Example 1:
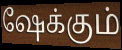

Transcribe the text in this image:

ஷேக்கும்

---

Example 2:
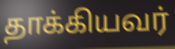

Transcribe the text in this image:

தாக்கியவர்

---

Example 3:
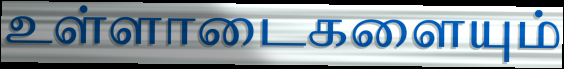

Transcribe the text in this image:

உள்ளாடைகளையும்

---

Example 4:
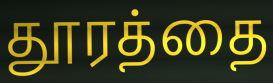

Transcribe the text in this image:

தூரத்தை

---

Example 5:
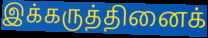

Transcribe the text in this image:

இக்கருத்தினைக்